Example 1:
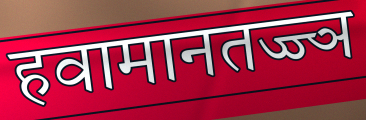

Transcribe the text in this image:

हवामानतज्ज्ञ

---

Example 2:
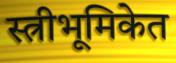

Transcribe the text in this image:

स्त्रीभूमिकेत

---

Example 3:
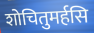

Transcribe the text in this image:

शोचितुमर्हसि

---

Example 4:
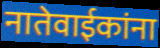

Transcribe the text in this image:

नातेवाईकांना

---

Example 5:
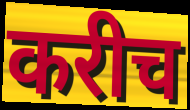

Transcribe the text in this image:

करीच